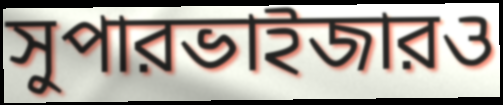
সুপারভাইজারও